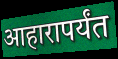
आहारापर्यंत